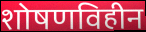
शोषणविहीन